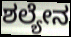
ಶಲ್ಯೇನ